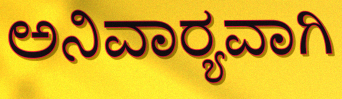
ಅನಿವಾರ‍್ಯವಾಗಿ